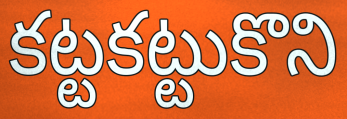
కట్టకట్టుకొని